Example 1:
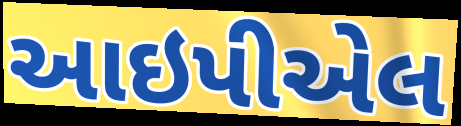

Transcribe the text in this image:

આઇપીએલ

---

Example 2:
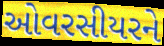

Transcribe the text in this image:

ઓવરસીયરને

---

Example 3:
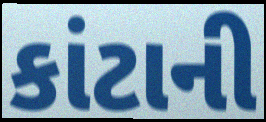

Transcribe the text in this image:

કાંટાની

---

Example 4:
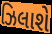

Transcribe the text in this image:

ઝિલાશે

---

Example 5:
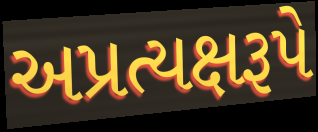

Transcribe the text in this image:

અપ્રત્યક્ષરૂપે